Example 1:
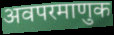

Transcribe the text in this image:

अवपरमाणुक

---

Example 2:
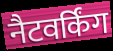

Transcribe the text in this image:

नैटवर्किंग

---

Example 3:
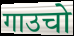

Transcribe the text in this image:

गाउचो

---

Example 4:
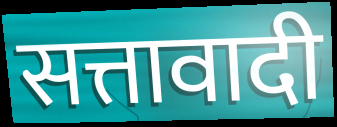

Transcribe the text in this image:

सत्तावादी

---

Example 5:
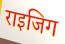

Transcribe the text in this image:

राइजिग